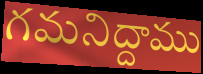
గమనిద్దాము